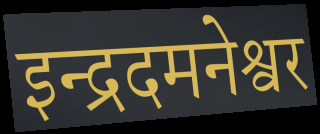
इन्द्रदमनेश्वर